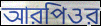
আরপিওর